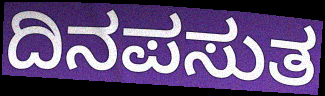
ದಿನಪಸುತ